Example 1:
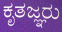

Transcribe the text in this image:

ಕೃತಜ್ಞರು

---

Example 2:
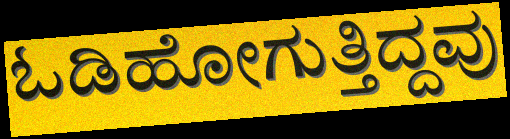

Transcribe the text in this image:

ಓಡಿಹೋಗುತ್ತಿದ್ದವು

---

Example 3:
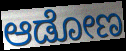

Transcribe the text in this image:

ಆಡೋಣ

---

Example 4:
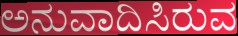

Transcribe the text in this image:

ಅನುವಾದಿಸಿರುವ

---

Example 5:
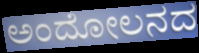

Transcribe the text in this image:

ಅಂದೋಲನದ